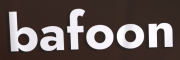
bafoon